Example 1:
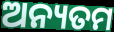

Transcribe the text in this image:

ଅନ୍ୟତମ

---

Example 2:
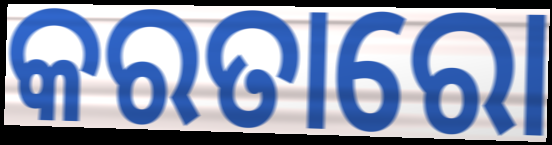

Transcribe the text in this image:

କରତାରୋ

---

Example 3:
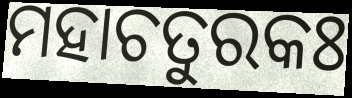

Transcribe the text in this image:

ମହାଚତୁରକଃ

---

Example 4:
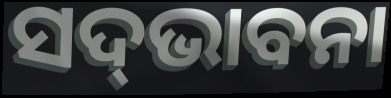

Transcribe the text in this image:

ସଦ୍‌ଭାବନା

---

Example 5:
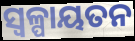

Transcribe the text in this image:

ସ୍ୱଳ୍ପାୟତନ